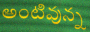
అంటివున్న